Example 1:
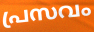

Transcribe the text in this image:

പ്രസവം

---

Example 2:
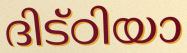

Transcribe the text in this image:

ദിട്ഠിയാ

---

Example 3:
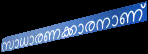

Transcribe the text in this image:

സാധാരണക്കാരനാണ്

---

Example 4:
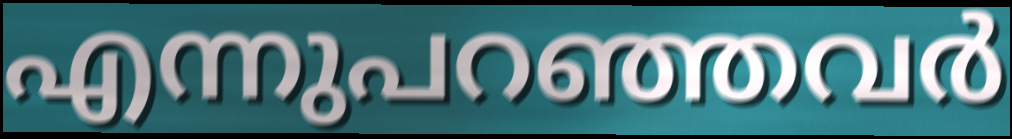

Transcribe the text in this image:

എന്നുപറഞ്ഞവർ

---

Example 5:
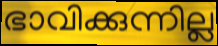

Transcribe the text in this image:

ഭാവിക്കുന്നില്ല